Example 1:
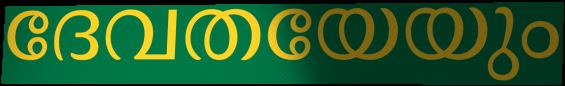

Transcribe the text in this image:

ദേവതയേയും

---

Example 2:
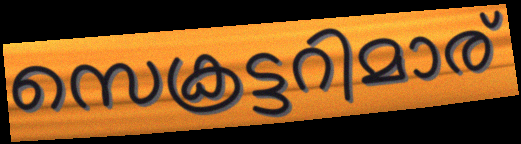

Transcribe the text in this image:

സെക്രട്ടറിമാര്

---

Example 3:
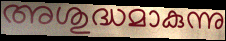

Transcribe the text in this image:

അശുദ്ധമാകുന്നു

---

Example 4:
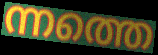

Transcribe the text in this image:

ന്നത്തെ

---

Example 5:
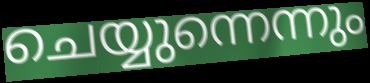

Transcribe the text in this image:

ചെയ്യുന്നെന്നും